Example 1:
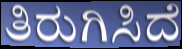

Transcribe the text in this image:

ತಿರುಗಿಸಿದೆ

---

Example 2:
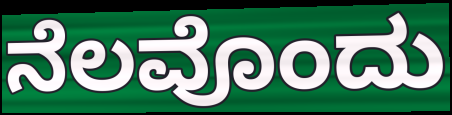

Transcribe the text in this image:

ನೆಲವೊಂದು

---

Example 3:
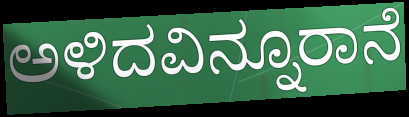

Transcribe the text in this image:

ಅಳಿದವಿನ್ನೂರಾನೆ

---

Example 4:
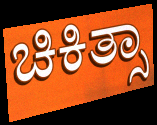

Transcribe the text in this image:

ಚಿಕಿತ್ಸಾ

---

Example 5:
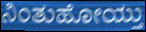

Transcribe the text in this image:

ನಿಂತುಹೋಯ್ತು